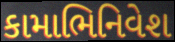
કામાભિનિવેશ